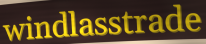
windlasstrade